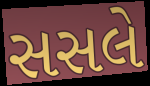
સસલે